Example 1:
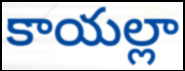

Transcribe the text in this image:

కాయల్లా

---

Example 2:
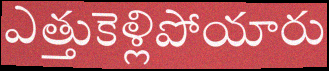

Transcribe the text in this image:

ఎత్తుకెళ్లిపోయారు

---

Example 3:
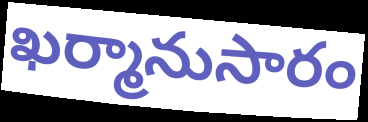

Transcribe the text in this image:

ఖర్మానుసారం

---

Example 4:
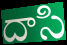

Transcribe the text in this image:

దాసి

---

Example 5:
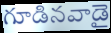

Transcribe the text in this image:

గూడినవాడై